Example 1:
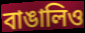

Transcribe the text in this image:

বাঙালিও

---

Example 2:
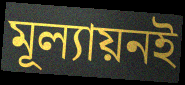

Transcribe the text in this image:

মূল্যায়নই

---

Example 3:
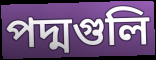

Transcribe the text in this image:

পদ্মগুলি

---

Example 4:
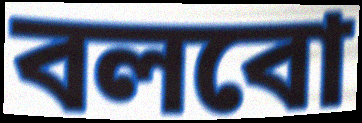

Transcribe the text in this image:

বলবো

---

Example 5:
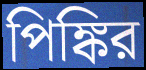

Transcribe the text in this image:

পিঙ্কির